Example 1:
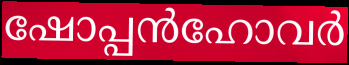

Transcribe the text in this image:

ഷോപ്പൻഹോവർ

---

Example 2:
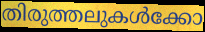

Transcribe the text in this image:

തിരുത്തലുകൾക്കോ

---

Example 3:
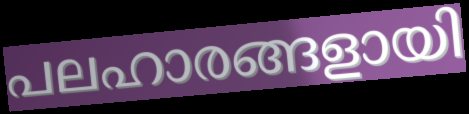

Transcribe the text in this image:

പലഹാരങ്ങളായി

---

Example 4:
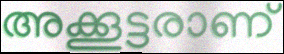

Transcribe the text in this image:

അക്കൂട്ടരാണ്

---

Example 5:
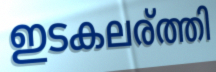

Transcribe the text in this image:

ഇടകലര്ത്തി